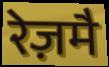
रेज़मै